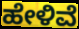
ಹೇಳಿವೆ